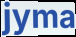
jyma